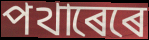
পথাৰেৰে